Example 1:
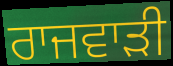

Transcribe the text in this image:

ਰਾਜਵਾੜੀ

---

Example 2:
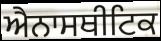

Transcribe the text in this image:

ਐਨਾਸਥੀਟਿਕ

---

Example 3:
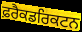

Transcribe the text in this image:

ਫ਼ਰੈਕਡਰਿਕਟਨ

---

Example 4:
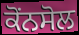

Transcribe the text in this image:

ਕੋਂਨਸੋਲ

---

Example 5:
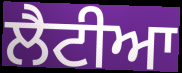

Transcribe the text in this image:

ਲੈਟੀਆ